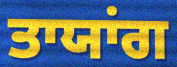
ਤਾਯਾਂਗ